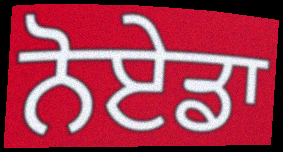
ਨੋਏਡਾ